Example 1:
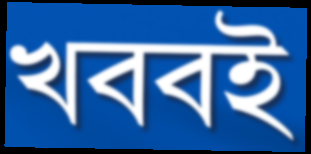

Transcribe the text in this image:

খববই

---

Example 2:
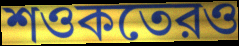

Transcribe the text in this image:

শওকতেরও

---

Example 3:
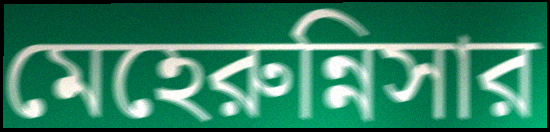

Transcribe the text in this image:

মেহেরুন্নিসার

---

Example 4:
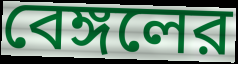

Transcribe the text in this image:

বেঙ্গলের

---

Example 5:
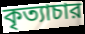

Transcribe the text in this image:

কৃত্যাচার